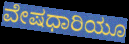
ವೇಷಧಾರಿಯೂ